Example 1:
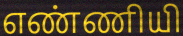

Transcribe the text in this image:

எண்ணியி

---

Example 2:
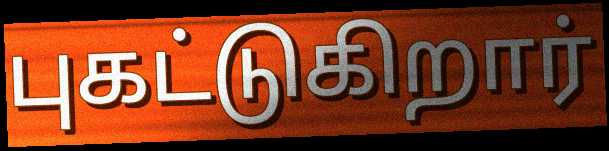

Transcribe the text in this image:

புகட்டுகிறார்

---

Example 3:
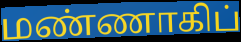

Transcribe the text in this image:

மண்ணாகிப்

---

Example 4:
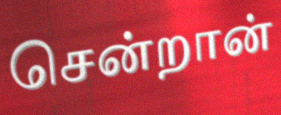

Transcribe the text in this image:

சென்றான்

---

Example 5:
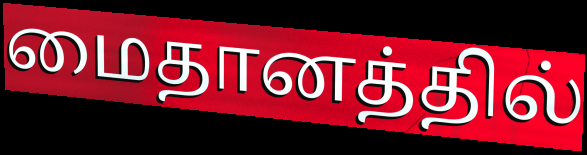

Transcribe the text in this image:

மைதானத்தில்